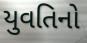
યુવતિનો